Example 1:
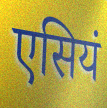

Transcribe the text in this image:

एसियं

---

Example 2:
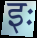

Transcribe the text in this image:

इः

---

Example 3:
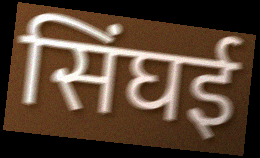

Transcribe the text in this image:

सिंघई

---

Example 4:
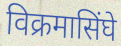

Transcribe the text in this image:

विक्रमासिंघे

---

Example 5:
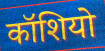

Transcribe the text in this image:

कॉशियो